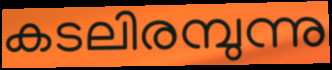
കടലിരമ്പുന്നു